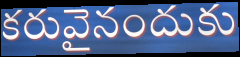
కరువైనందుకు